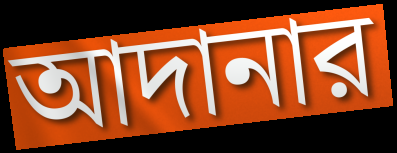
আদানার